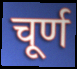
चूर्ण